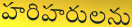
హరిహరులను